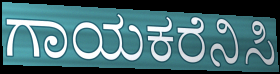
ಗಾಯಕರೆನಿಸಿ